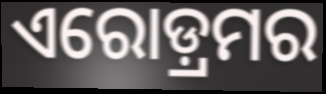
ଏରୋଡ଼୍ରମର